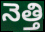
నెత్తి